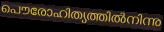
പൌരോഹിത്യത്തിൽനിന്നു